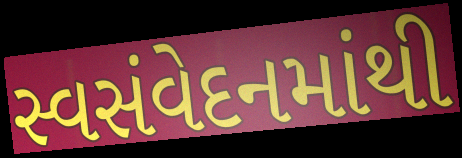
સ્વસંવેદનમાંથી